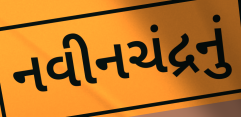
નવીનચંદ્રનું